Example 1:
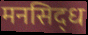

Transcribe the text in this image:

मनसिद्ध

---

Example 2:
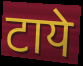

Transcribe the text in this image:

टाये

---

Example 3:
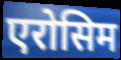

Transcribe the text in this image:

एरोसिम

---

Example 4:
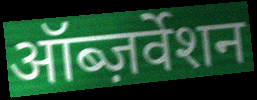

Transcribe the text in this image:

ऑब्ज़र्वेशन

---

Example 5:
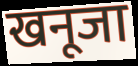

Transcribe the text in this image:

खनूजा